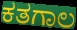
ಕತಗಾಲ